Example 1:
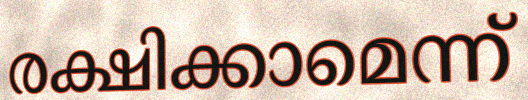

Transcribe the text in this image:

രക്ഷിക്കാമെന്ന്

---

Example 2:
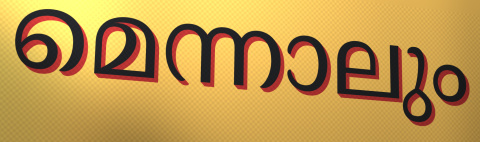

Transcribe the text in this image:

മെന്നാലും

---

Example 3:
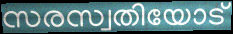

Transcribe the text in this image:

സരസ്വതിയോട്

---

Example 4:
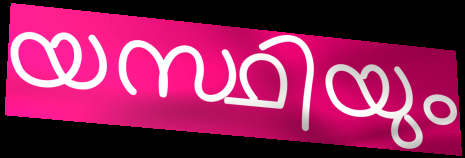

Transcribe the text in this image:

യസ്ഥിയും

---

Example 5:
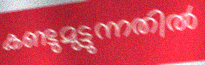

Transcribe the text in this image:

കണ്ടുമുട്ടുന്നതിൽ